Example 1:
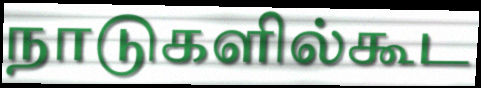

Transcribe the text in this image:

நாடுகளில்கூட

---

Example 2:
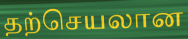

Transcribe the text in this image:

தற்செயலான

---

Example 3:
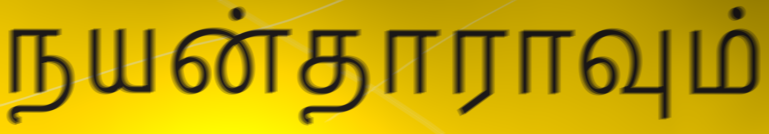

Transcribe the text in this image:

நயன்தாராவும்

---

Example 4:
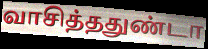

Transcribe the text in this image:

வாசித்ததுண்டா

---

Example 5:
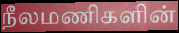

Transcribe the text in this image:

நீலமணிகளின்